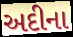
અદીના